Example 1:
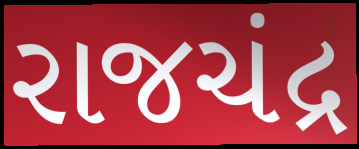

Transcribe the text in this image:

રાજચંદ્ર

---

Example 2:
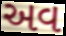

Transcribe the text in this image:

અવ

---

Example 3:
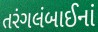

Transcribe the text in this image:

તરંગલંબાઈનાં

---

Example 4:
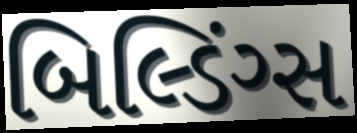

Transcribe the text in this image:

બિલ્ડિંગ્સ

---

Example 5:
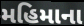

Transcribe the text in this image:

મહિમાના